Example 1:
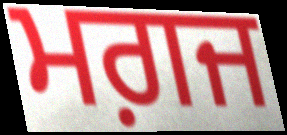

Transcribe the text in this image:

ਮਗ਼ਜ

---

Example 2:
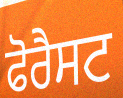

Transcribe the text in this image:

ਫੋਰੈਸਟ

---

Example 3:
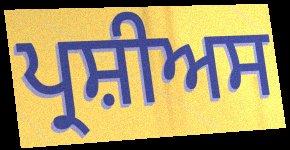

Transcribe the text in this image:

ਪ੍ਰਸ਼ੀਅਸ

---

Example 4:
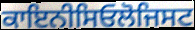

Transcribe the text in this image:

ਕਾਇਨੀਸਿਓਲੋਜਿਸਟ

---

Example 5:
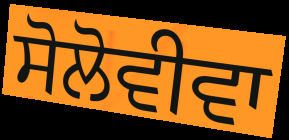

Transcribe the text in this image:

ਸੋਲੋਵੀਵਾ